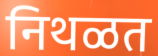
निथळत